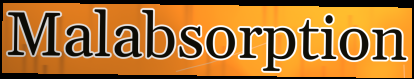
Malabsorption